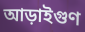
আড়াইগুণ